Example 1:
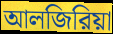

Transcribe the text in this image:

আলজিরিয়া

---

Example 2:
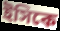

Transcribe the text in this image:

ইসিকে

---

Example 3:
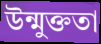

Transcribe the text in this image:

উন্মুক্ততা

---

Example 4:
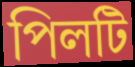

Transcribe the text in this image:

পিলটি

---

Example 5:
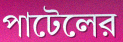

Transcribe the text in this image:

পাটেলের